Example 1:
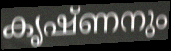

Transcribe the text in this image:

കൃഷ്ണനും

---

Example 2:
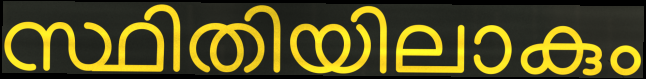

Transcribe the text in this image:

സ്ഥിതിയിലാകും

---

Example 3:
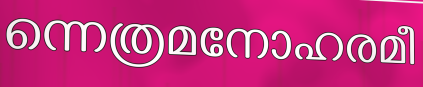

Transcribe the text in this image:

ന്നെത്രമനോഹരമീ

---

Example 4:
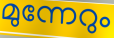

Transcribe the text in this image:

മുന്നേറും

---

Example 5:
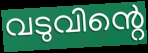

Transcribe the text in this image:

വടുവിന്റെ